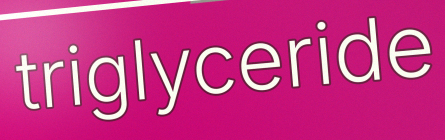
triglyceride